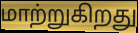
மாற்றுகிறது